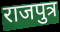
राजपुत्र